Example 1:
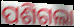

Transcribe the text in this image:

ପଶିଗଲା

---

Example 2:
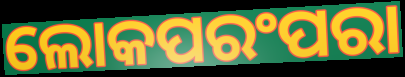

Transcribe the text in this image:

ଲୋକପରଂପରା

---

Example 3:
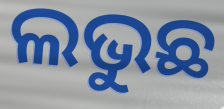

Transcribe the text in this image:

ଲଭୁଛ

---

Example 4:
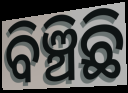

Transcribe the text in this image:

ବିଞ୍ଚିଛି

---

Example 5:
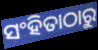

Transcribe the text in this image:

ସଂହିତାଠାରୁ